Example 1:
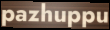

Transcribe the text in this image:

pazhuppu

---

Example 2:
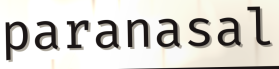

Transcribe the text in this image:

paranasal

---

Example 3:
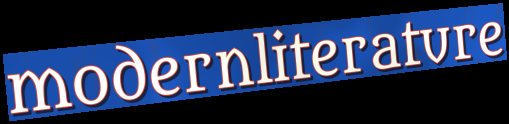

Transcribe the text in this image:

modernliterature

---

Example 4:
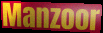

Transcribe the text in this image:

Manzoor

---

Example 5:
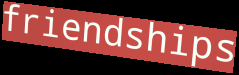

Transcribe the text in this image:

friendships